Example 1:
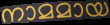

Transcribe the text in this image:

നാമമായ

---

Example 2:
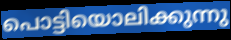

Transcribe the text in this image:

പൊട്ടിയൊലിക്കുന്നു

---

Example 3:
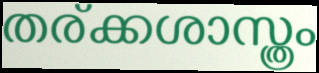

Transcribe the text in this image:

തര്ക്കശാസ്ത്രം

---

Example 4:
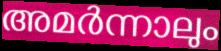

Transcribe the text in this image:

അമർന്നാലും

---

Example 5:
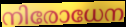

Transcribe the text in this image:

നിരോധേന